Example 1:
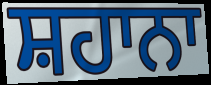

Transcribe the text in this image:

ਸ਼ਹਾਨਾ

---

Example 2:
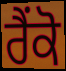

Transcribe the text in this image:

ਰੈਂਕੋ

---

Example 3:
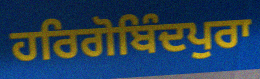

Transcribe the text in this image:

ਹਰਿਗੋਬਿੰਦਪੁਰਾ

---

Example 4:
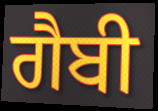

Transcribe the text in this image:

ਗੈਬੀ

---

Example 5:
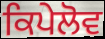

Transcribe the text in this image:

ਕਿਪੇਲੋਵ